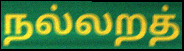
நல்லறத்